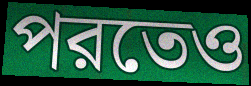
পরতেও